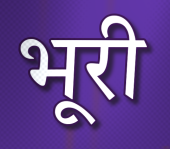
भूरी